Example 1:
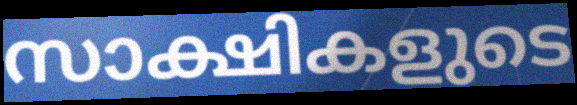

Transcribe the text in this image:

സാക്ഷികളുടെ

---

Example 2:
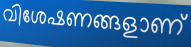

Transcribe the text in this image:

വിശേഷണങ്ങളാണ്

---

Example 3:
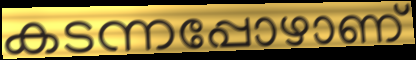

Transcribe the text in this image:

കടന്നപ്പോഴാണ്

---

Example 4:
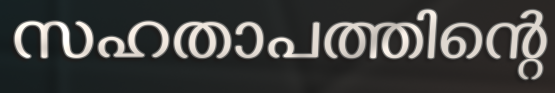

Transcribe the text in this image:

സഹതാപത്തിന്റെ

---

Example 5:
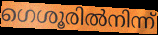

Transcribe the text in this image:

ഗെശൂരിൽനിന്ന്